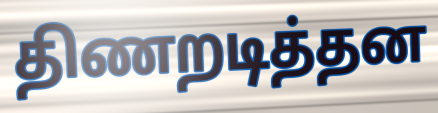
திணறடித்தன